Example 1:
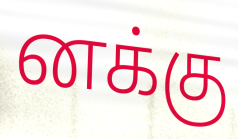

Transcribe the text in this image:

னக்கு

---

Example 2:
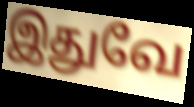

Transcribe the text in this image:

இதுவே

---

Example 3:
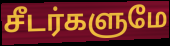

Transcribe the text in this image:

சீடர்களுமே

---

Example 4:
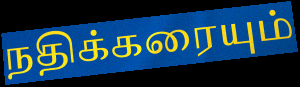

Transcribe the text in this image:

நதிக்கரையும்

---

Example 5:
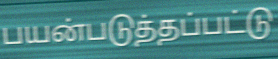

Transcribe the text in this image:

பயன்படுத்தப்பட்டு